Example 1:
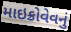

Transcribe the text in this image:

માઇક્રોવેવનું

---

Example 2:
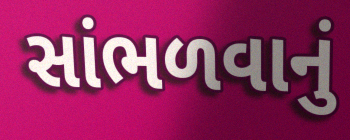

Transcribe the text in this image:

સાંભળવાનું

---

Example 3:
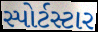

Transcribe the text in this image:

સ્પોર્ટસ્ટાર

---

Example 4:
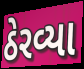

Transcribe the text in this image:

ઠેરવ્યા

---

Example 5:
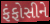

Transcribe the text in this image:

ફંફોસીને